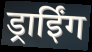
ड्राईिंग